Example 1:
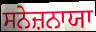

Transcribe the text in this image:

ਸਨੇਜ਼ਨਾਯਾ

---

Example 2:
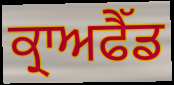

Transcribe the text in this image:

ਕ੍ਰਾਅਫੈੱਡ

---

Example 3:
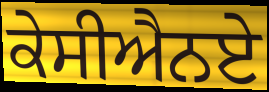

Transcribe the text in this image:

ਕੇਸੀਐਨਏ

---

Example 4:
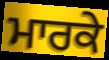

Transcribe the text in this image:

ਮਾਰਕੇ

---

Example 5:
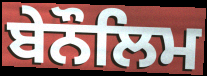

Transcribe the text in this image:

ਬੇਨੌਲਿਮ